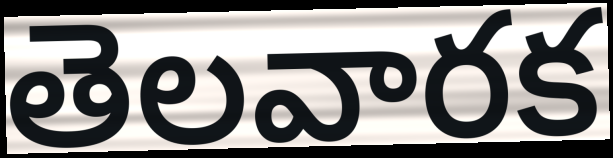
తెలవారక